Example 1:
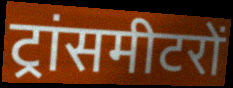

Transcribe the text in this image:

ट्रांसमीटरों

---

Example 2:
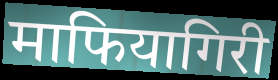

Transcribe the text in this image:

माफियागिरी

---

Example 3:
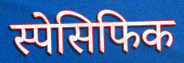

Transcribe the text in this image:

स्पेसिफिक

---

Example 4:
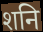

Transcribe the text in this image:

शनि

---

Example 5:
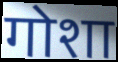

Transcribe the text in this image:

गोशा